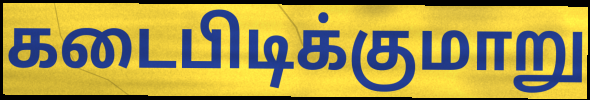
கடைபிடிக்குமாறு